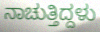
ನಾಚುತ್ತಿದ್ದಳು